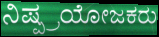
ನಿಷ್ಪ್ರಯೋಜಕರು